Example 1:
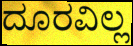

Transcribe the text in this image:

ದೂರವಿಲ್ಲ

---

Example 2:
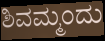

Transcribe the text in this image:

ಶಿವಮ್ಮಂದು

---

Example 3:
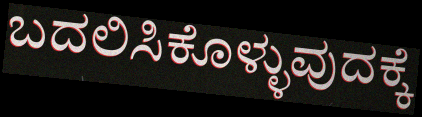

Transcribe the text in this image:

ಬದಲಿಸಿಕೊಳ್ಳುವುದಕ್ಕೆ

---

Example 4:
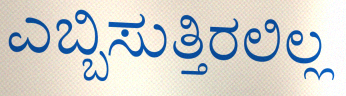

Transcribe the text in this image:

ಎಬ್ಬಿಸುತ್ತಿರಲಿಲ್ಲ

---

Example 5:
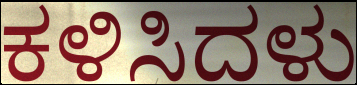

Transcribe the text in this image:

ಕಳಿಸಿದಳು